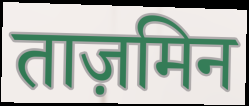
ताज़मिन